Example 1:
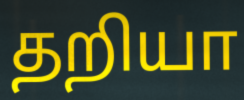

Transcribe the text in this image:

தறியா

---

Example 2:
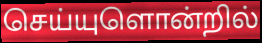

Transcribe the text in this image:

செய்யுளொன்றில்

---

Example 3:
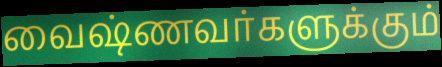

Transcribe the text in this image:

வைஷ்ணவர்களுக்கும்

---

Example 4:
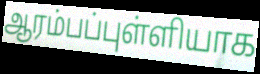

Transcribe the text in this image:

ஆரம்பப்புள்ளியாக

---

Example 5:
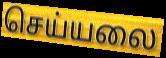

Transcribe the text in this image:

செய்யலை